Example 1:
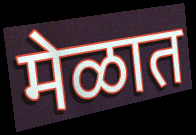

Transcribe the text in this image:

मेळात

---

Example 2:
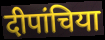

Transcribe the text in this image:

दीपांचिया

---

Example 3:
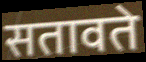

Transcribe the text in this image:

सतावते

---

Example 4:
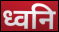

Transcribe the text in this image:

ध्वनि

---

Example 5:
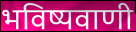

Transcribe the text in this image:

भविष्यवाणी